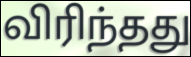
விரிந்தது